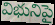
విభునిపై